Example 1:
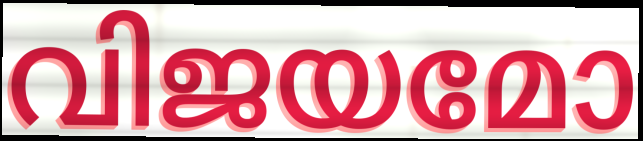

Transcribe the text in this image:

വിജയമോ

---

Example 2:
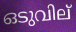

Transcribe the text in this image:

ഒടുവില്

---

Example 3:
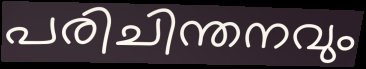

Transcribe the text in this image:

പരിചിന്തനവും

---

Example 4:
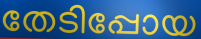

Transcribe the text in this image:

തേടിപ്പോയ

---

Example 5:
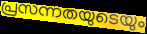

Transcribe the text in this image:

പ്രസന്നതയുടെയും